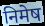
निमेष